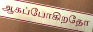
ஆகப்போகிறதோ